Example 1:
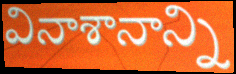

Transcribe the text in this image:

వినాశానాన్ని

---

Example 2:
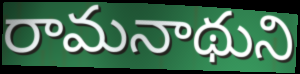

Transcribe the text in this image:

రామనాథుని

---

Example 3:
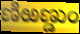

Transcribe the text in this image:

ణిఱణ్డుం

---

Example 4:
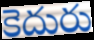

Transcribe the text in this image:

కెదురు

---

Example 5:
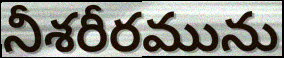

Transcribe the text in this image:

నీశరీరమును